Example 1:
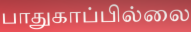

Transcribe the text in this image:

பாதுகாப்பில்லை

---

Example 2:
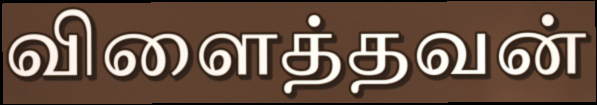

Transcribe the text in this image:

விளைத்தவன்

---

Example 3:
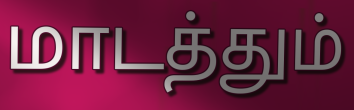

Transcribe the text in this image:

மாடத்தும்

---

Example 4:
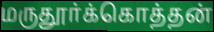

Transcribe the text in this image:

மருதூர்க்கொத்தன்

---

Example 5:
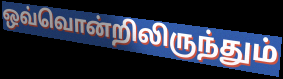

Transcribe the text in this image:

ஒவ்வொன்றிலிருந்தும்